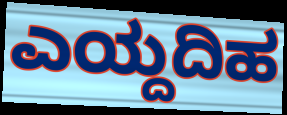
ಎಯ್ದದಿಹ